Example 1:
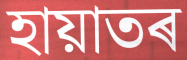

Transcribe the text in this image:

হায়াতৰ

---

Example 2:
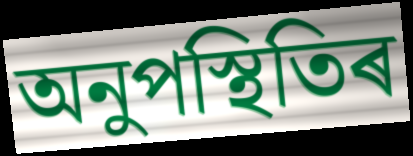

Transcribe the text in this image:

অনুপস্থিতিৰ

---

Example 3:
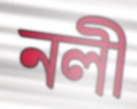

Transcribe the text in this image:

নলী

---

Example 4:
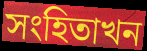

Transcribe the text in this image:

সংহিতাখন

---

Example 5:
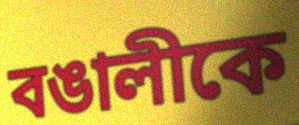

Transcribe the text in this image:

বঙালীকে